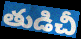
తుడిచీ